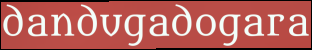
dandugadogara